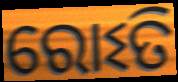
ରୋଽତି